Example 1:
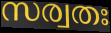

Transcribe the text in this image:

സര്വതഃ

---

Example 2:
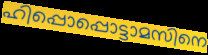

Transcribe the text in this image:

ഹിപ്പൊപ്പൊട്ടാമസിനെ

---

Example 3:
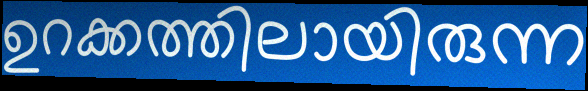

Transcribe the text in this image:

ഉറക്കത്തിലായിരുന്ന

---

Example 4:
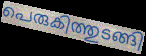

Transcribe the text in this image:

പെരുകിത്തുടങ്ങി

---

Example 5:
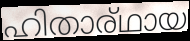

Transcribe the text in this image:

ഹിതാര്ഥായ